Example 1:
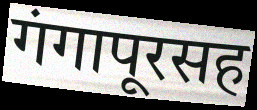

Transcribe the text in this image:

गंगापूरसह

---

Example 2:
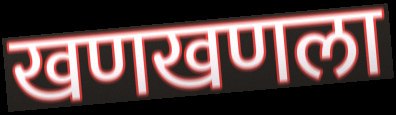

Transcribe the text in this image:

खणखणला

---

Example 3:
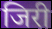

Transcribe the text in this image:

जिरी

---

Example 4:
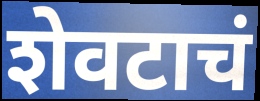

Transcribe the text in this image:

शेवटाचं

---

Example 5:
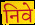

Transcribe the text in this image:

निवे